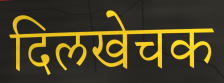
दिलखेचक